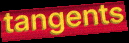
tangents